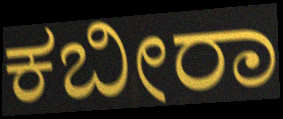
ಕಬೀರಾ